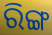
ରିଙ୍ଗ